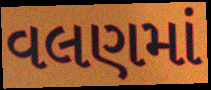
વલણમાં